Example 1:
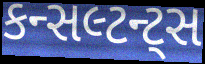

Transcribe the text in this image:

કન્સલ્ટન્ટ્સ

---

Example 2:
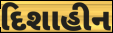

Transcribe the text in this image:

દિશાહીન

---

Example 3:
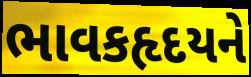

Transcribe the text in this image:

ભાવકહૃદયને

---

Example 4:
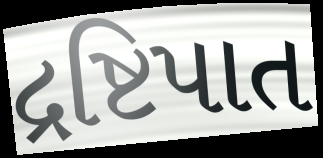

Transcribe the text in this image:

દ્રષ્ટિપાત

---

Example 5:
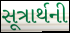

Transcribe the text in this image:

સૂત્રાર્થની